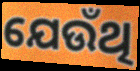
ଯେଉଁଥି